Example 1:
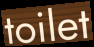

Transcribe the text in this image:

toilet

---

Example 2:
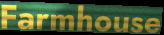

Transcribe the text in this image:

Farmhouse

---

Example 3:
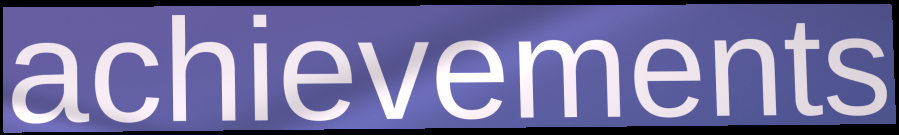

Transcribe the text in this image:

achievements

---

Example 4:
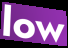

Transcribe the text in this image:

low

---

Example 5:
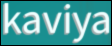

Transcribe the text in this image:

kaviya